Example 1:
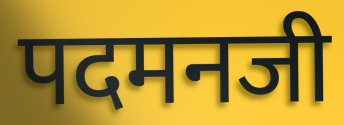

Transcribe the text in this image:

पदमनजी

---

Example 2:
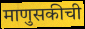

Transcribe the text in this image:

माणुसकीची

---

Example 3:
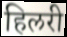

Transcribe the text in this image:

हिलरी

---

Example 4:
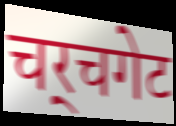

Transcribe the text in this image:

चर्चगेट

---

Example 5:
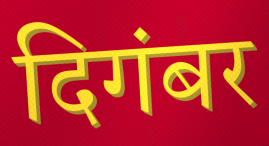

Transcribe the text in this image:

दिगंबर